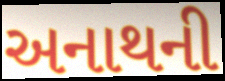
અનાથની